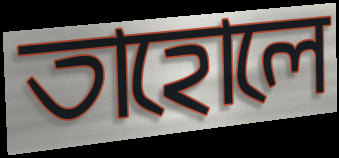
তাহোলে